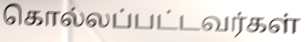
கொல்லப்பட்டவர்கள்